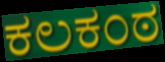
ಕಲಕಂಠ